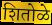
शितोळे